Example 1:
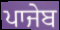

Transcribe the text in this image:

ਪਾਜੇਬ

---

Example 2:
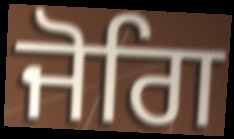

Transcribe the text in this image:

ਜੋਗਿ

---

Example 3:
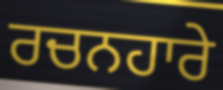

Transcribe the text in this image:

ਰਚਨਹਾਰੇ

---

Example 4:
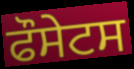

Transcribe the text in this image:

ਫੌਸੇਟਸ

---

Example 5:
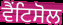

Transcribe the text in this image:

ਵੈਂਟਿਸੋਲ